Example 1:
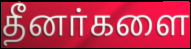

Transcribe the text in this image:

தீனர்களை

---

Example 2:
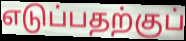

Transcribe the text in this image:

எடுப்பதற்குப்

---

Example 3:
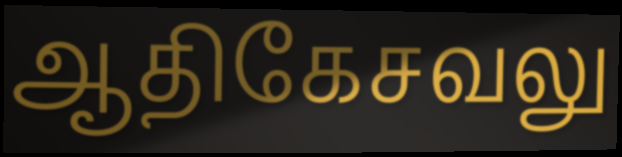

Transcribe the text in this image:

ஆதிகேசவலு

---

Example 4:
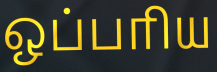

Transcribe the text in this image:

ஒப்பரிய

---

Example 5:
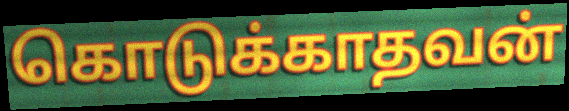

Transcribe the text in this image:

கொடுக்காதவன்